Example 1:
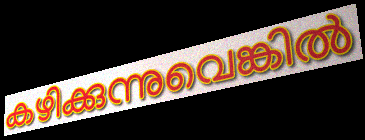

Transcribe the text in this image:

കഴിക്കുന്നുവെങ്കിൽ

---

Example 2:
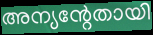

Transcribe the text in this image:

അന്യന്റേതായി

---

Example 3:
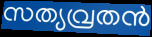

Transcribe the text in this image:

സത്യവ്രതൻ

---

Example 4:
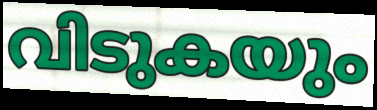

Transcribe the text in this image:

വിടുകയും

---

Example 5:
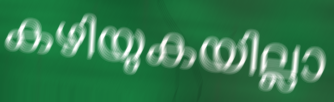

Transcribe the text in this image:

കഴിയുകയില്ലാ